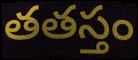
తతస్తం